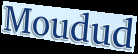
Moudud